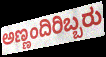
ಅಣ್ಣಂದಿರಿಬ್ಬರು